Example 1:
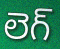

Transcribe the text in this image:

లెగ్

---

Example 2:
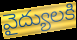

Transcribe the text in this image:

వైద్యులకి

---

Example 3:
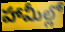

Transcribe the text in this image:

హామీల్లో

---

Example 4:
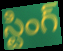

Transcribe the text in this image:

స్టింగ్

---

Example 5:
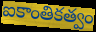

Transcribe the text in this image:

ఐకాంతికత్వం